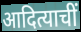
आदित्याचीं